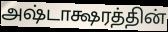
அஷ்டாக்ஷரத்தின்